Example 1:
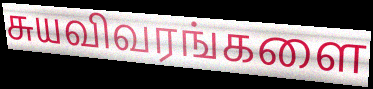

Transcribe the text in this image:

சுயவிவரங்களை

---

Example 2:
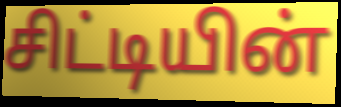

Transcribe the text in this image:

சிட்டியின்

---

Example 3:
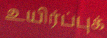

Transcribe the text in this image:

உயிர்ப்புக்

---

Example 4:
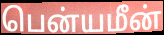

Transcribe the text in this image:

பென்யமீன்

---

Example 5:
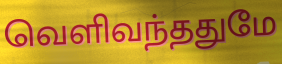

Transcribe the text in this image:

வெளிவந்ததுமே